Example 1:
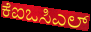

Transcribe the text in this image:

ಕೆಐಒಸಿಎಲ್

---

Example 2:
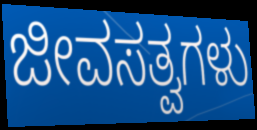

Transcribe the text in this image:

ಜೀವಸತ್ವಗಳು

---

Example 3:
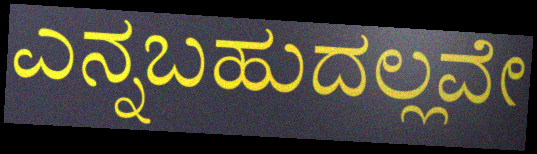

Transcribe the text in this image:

ಎನ್ನಬಹುದಲ್ಲವೇ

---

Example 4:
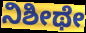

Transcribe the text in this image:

ನಿಶೀಥೇ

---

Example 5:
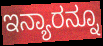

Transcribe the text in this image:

ಇನ್ಯಾರನ್ನೂ